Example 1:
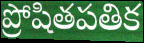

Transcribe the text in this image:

ప్రోషితపతిక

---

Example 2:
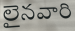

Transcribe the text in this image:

లైనవారి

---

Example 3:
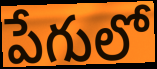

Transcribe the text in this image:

పేగులో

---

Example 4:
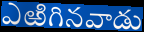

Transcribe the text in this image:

ఎఱిగినవాడు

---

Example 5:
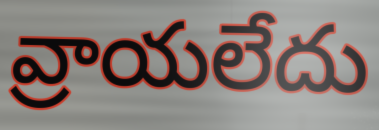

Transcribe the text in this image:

వ్రాయలేదు